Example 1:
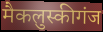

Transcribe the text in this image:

मैकलुस्कीगंज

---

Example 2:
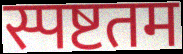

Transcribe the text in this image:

स्पष्टतम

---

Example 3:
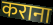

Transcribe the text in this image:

कराना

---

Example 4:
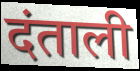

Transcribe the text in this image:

दंताली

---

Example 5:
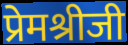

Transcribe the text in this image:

प्रेमश्रीजी